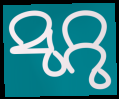
മുറ്റു